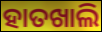
ହାତଖାଲି